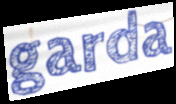
garda